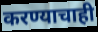
करण्याचाही